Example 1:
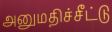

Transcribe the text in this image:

அனுமதிச்சீட்டு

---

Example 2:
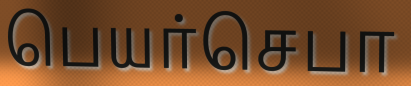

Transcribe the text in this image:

பெயர்செபா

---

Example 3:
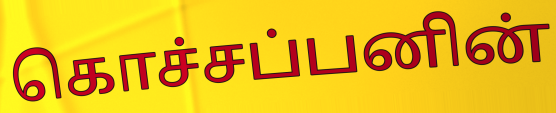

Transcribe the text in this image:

கொச்சப்பனின்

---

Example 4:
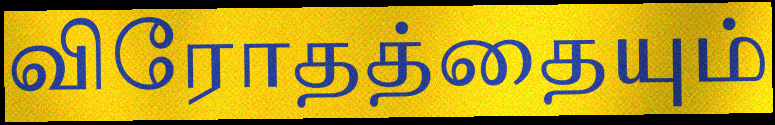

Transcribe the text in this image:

விரோதத்தையும்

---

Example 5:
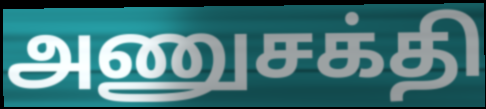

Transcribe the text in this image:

அணுசக்தி